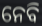
ନେବି